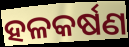
ହଳକର୍ଷଣ